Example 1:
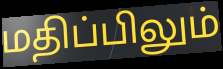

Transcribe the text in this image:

மதிப்பிலும்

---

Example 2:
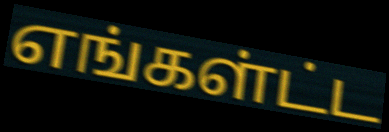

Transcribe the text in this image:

எங்கள்ட்ட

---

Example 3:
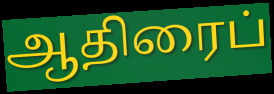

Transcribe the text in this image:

ஆதிரைப்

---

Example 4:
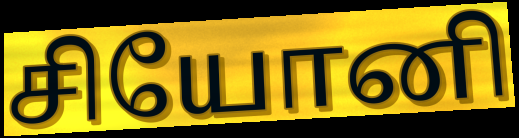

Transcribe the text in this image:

சியோனி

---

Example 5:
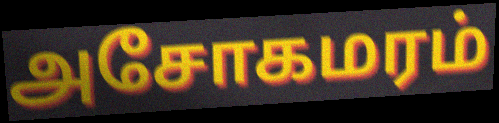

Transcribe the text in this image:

அசோகமரம்